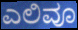
ಎಲಿವೂ